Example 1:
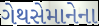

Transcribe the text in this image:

ગેથસેમાનેના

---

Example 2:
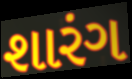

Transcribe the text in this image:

શારંગ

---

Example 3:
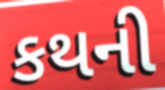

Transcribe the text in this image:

કથની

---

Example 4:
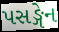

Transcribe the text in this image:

પસઙ્ગેન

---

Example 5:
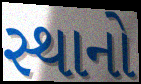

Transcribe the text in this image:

સ્થાનો